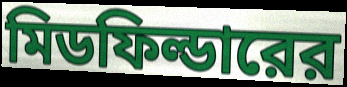
মিডফিল্ডারের